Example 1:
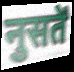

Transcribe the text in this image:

नुसतें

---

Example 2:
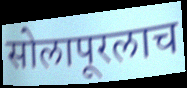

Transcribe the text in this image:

सोलापूरलाच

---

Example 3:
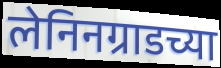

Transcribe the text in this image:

लेनिनग्राडच्या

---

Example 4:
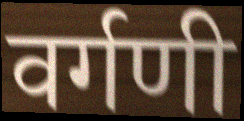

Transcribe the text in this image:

वर्गणी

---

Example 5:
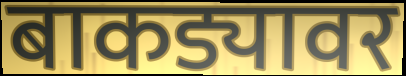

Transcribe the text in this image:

बाकड्यावर